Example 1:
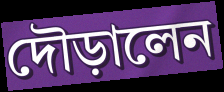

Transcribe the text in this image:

দৌড়ালেন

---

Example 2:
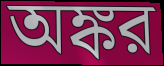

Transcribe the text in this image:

অঙ্কর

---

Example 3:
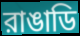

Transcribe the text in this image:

রাঙাডি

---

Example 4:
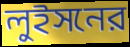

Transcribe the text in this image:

লুইসনের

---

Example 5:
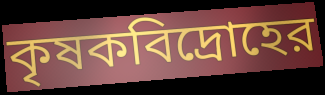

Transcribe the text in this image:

কৃষকবিদ্রোহের